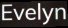
Evelyn